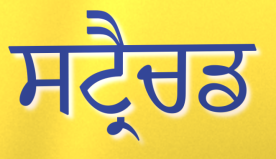
ਸਟ੍ਰੈਚਡ